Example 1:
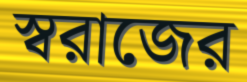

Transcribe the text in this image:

স্বরাজের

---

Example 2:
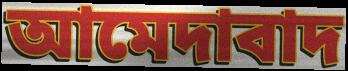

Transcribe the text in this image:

আমেদাবাদ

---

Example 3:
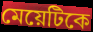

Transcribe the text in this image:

মেয়েটিকে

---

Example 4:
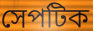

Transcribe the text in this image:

সেপটিক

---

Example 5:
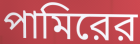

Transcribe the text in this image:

পামিরের